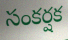
సంకర్షక